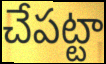
చేపట్టా